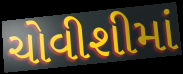
ચોવીશીમાં